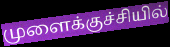
முளைக்குச்சியில்